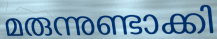
മരുന്നുണ്ടാക്കി